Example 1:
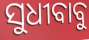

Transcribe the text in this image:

ସୁଧୀବାବୁ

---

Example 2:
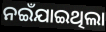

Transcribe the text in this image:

ନଇଁଯାଇଥିଲା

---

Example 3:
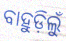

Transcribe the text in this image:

ବାହୁଡ଼ିଲୁଁ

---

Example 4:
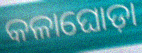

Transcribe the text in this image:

କଳାଘୋଡ଼ା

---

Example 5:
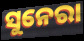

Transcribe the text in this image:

ସୁନେରା